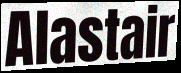
Alastair